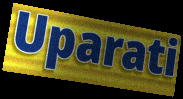
Uparati